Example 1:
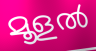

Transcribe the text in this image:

മൂളൽ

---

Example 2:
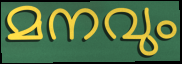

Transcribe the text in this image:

മനവും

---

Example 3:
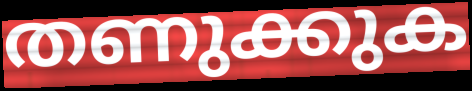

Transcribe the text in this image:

തണുക്കുക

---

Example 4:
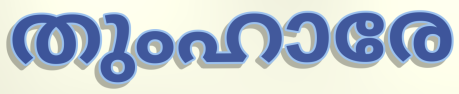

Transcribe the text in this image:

തുംഹാരേ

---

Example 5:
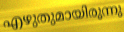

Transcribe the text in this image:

എഴുതുമായിരുന്നു